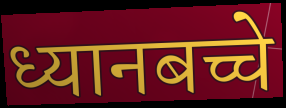
ध्यानबच्चे